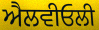
ਐਲਵੀਓਲੀ